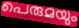
പെരുമയും